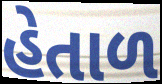
હેતાળ